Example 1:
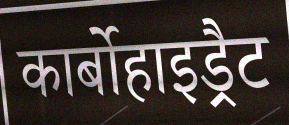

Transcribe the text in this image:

कार्बोहाइड्रैट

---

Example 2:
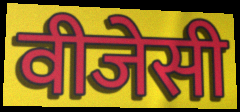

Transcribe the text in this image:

वीजेसी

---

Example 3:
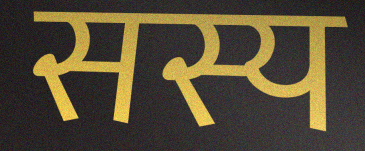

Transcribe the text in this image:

सस्य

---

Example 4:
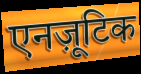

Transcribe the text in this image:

एनज़ूटिक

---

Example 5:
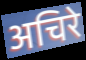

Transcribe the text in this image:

अचिरे